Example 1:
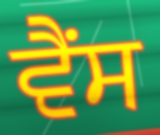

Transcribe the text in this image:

ਵੈਂਸ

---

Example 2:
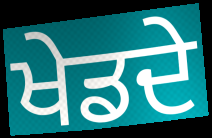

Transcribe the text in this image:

ਖੇਡਦੇ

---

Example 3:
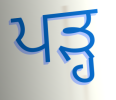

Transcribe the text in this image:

ਪੜ੍ਹ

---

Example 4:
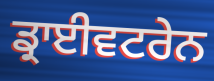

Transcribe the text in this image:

ਡ੍ਰਾਈਵਟਰੇਨ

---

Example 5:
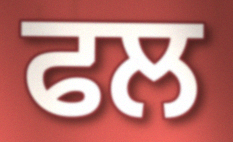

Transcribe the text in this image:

ਫਲ